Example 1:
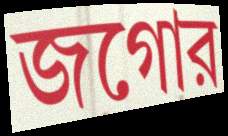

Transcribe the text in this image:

জগোর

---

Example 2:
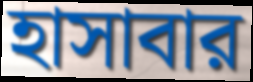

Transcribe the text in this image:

হাসাবার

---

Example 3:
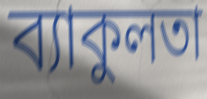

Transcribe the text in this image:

ব্যাকুলতা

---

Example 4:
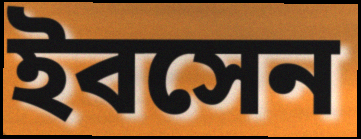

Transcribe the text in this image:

ইবসেন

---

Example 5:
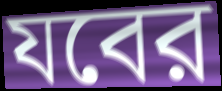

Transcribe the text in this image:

যবের